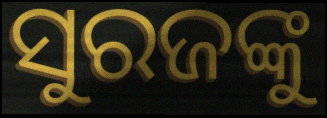
ସୁରଜଙ୍କୁ